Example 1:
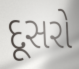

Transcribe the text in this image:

દૂસરો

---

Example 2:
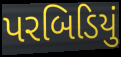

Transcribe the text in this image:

પરબિડિયું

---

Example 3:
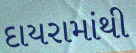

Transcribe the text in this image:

દાયરામાંથી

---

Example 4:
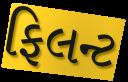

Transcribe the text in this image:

ફિલન્ટ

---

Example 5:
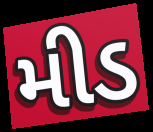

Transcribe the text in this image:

મીડ